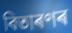
বিতাৰণৰ